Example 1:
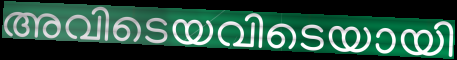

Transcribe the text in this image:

അവിടെയവിടെയായി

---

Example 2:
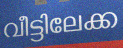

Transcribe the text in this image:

വീട്ടിലേക്ക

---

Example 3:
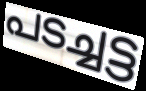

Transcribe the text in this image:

പടച്ചട്ട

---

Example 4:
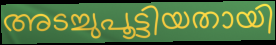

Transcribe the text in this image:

അടച്ചുപൂട്ടിയതായി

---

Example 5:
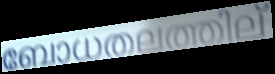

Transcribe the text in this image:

ബോധതലത്തില്